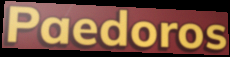
Paedoros